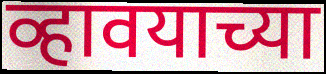
व्हावयाच्या